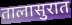
तालासुरात